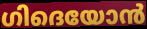
ഗിദെയോൻ